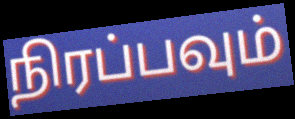
நிரப்பவும்